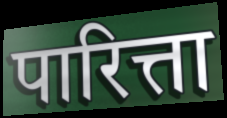
पारित्ता